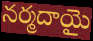
నర్మదాయై